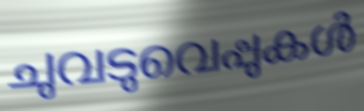
ചുവടുവെപ്പുകൾ